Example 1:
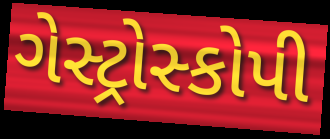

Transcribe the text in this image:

ગેસ્ટ્રોસ્કોપી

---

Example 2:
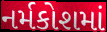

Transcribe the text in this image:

નર્મકોશમાં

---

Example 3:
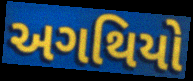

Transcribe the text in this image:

અગથિયો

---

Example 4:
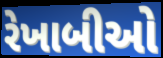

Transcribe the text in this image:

રેખાબીઓ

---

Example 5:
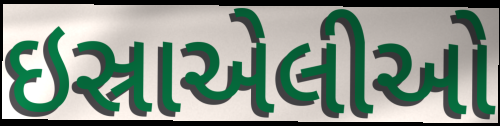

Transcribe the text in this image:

ઇસ્રાએલીઓ